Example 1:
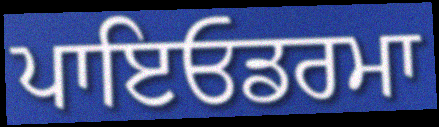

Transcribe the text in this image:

ਪਾਇਓਡਰਮਾ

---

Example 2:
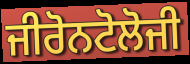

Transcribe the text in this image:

ਜੀਰੋਨਟੋਲੋਜੀ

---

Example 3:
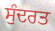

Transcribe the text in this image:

ਸੁੰਦਰਤ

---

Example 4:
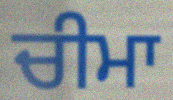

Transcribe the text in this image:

ਚੀਮਾ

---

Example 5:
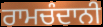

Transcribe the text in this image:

ਰਾਮਚੰਦਾਨੀ